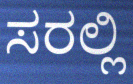
ಸರಲ್ಲಿ